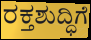
ರಕ್ತಶುದ್ಧಿಗೆ